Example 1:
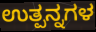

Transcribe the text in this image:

ಉತ್ಪನ್ನಗಳ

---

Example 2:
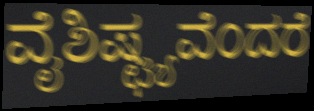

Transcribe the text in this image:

ವೈಶಿಷ್ಟ್ಯವೆಂದರೆ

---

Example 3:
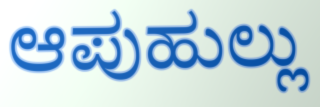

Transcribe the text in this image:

ಆಪುಹುಲ್ಲು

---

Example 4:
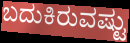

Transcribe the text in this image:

ಬದುಕಿರುವಷ್ಟು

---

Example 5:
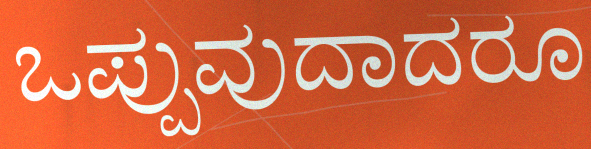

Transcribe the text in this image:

ಒಪ್ಪುವುದಾದರೂ